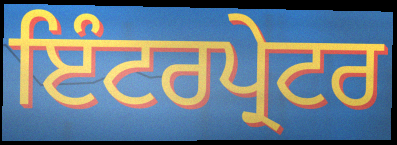
ਇੰਟਰਪ੍ਰੇਟਰ